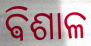
ଵିଶାଳ